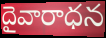
దైవారాధన